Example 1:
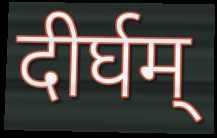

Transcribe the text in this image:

दीर्घम्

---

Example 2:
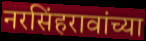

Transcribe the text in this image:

नरसिंहरावांच्या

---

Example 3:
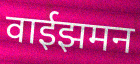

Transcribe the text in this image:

वाईझमन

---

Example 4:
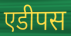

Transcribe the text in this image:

एडीपस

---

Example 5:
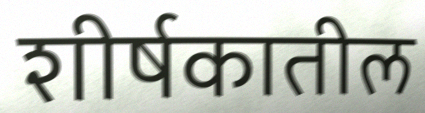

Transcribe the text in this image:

शीर्षकातील